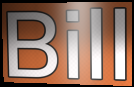
Bill